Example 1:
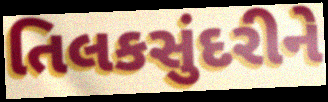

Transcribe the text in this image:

તિલકસુંદરીને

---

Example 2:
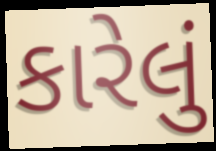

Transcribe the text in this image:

કારેલું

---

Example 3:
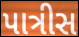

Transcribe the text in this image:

પાત્રીસ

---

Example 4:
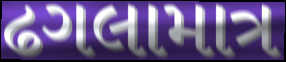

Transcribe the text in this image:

ઢગલામાત્ર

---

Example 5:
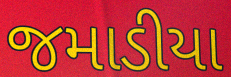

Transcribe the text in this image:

જમાડીયા